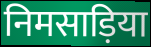
निमसाड़िया